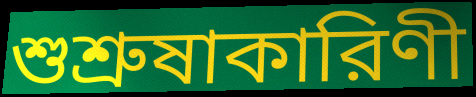
শুশ্রুষাকারিণী